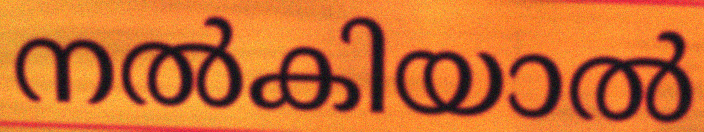
നൽകിയാൽ